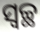
ସ୍ବଚ୍ଛ